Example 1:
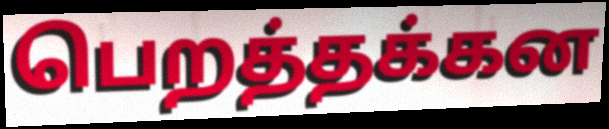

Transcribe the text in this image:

பெறத்தக்கன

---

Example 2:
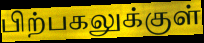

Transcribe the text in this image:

பிற்பகலுக்குள்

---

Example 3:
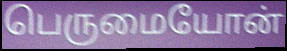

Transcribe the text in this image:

பெருமையோன்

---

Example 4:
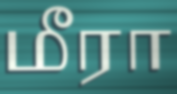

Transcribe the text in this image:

மீரா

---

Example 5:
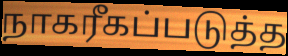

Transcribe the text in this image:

நாகரீகப்படுத்த